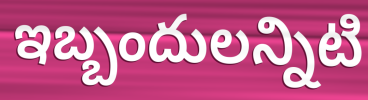
ఇబ్బందులన్నిటి